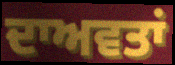
ਦਾਅਵਤਾਂ